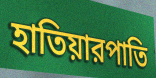
হাতিয়ারপাতি